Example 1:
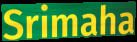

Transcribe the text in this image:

Srimaha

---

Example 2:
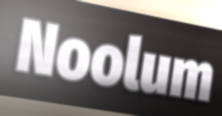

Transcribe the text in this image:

Noolum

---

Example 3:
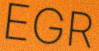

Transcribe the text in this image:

EGR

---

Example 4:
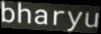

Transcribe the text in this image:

bharyu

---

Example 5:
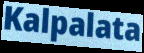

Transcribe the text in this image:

Kalpalata